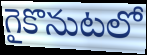
గైకొనుటలో